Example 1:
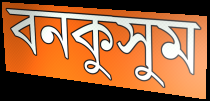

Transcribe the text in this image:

বনকুসুম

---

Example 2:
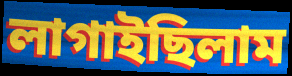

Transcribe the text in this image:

লাগাইছিলাম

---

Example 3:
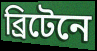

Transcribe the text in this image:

ব্রিটেনে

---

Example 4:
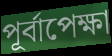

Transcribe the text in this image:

পূর্বাপেক্ষা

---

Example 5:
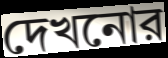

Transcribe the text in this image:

দেখনোর